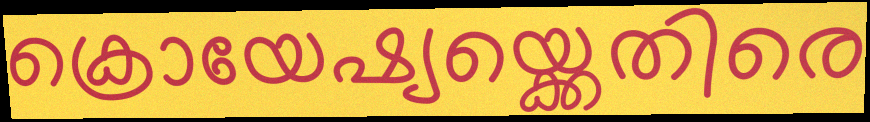
ക്രൊയേഷ്യയ്ക്കെതിരെ